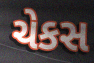
ચેકસ